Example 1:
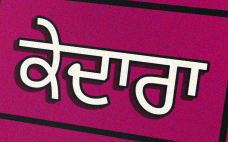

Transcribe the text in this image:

ਕੇਦਾਰਾ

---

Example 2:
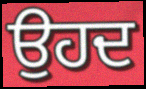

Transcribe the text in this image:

ਉਹਦ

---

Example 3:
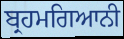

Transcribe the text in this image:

ਬ੍ਰਹਮਗਿਆਨੀ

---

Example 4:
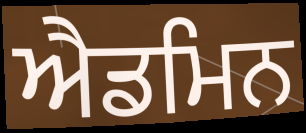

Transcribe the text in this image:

ਐਡਮਿਨ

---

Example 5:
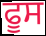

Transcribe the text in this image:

ਫੂਸ